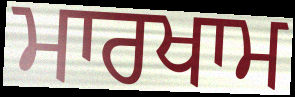
ਮਾਰਖਾਮ